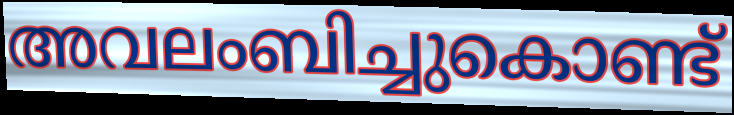
അവലംബിച്ചുകൊണ്ട്